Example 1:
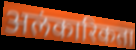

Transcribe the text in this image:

अलंकारिकता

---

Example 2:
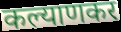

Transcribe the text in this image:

कल्याणकर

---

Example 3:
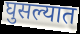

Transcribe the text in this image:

घुसल्यात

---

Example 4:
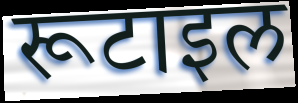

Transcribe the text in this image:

रूटाइल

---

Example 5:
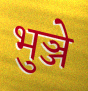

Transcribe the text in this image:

भुञ्जे